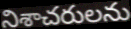
నిశాచరులను